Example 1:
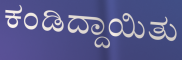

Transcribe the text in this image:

ಕಂಡಿದ್ದಾಯಿತು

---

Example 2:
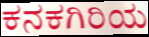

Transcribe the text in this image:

ಕನಕಗಿರಿಯ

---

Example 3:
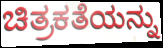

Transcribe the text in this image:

ಚಿತ್ರಕತೆಯನ್ನು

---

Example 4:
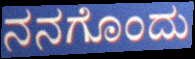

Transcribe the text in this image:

ನನಗೊಂದು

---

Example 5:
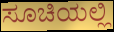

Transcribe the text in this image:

ಸೂಚಿಯಲ್ಲಿ